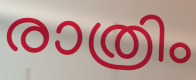
രാത്രിം